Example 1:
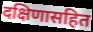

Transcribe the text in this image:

दक्षिणासहित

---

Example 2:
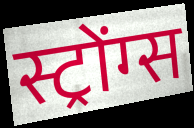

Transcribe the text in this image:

स्ट्रोंग्स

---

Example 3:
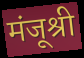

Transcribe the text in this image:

मंजूश्री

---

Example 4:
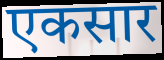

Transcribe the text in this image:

एकसार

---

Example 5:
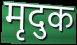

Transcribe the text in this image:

मृदुक